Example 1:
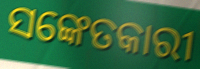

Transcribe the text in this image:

ସଙ୍କେତକାରୀ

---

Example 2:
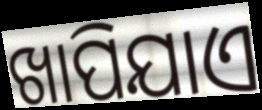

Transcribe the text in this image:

ଖାପିଯାଏ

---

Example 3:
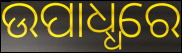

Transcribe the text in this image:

ଉପାଧ୍ଧରେ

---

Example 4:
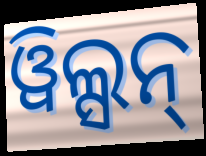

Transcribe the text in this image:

ୱିଲ୍ସନ୍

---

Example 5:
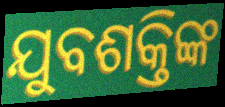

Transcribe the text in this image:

ଯୁବଶକ୍ତିଙ୍କ